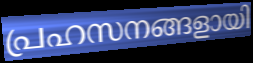
പ്രഹസനങ്ങളായി